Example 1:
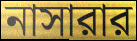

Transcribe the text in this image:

নাসারার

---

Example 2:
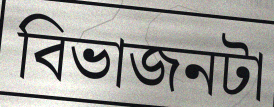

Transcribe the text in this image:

বিভাজনটা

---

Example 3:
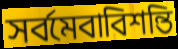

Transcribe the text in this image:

সর্বমেবাবিশন্তি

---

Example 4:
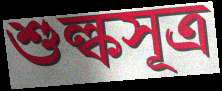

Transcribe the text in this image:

শুল্কসূত্র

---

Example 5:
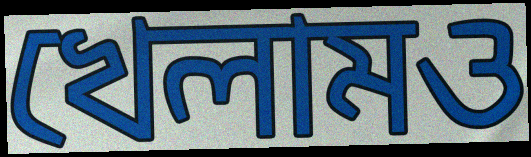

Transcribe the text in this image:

খেলামও